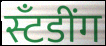
स्टँडींग